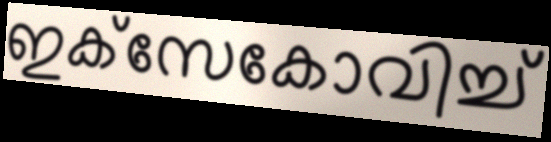
ഇക്‌സേകോവിച്ച്